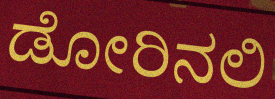
ಡೋರಿನಲಿ